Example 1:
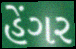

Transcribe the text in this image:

હેંગર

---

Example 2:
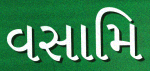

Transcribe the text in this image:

વસામિ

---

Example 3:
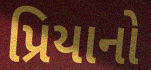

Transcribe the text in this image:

પ્રિયાનો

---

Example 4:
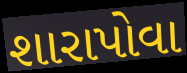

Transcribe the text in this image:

શારાપોવા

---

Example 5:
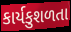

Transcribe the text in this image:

કાર્યકુશળતા